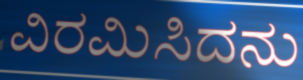
ವಿರಮಿಸಿದನು